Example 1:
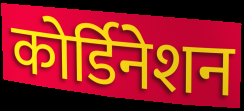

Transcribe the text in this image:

कोर्डिनेशन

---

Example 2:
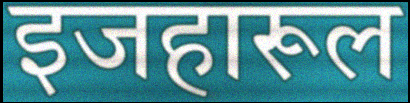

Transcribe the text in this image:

इजहारूल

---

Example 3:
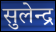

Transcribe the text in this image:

सुलेन्द्र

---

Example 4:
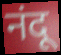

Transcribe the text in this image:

नंदू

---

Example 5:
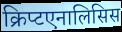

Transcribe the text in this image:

क्रिप्टएनालिसिस